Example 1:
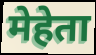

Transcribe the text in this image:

मेहेता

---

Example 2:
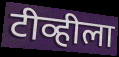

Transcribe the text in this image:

टीव्हीला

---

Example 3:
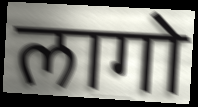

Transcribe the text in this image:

लागो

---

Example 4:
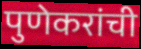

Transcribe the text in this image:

पुणेकरांची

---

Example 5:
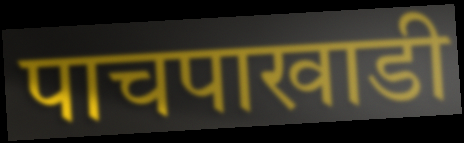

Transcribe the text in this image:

पाचपाखाडी